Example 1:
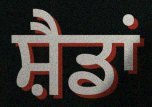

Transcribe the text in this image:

ਸ਼ੈਡਾਂ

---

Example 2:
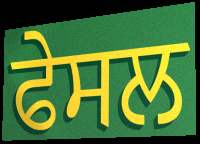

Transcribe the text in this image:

ਫੇਸਲ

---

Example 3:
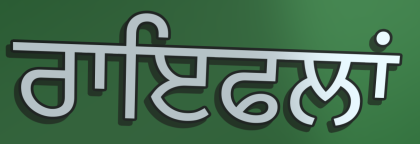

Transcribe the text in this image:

ਰਾਇਫਲਾਂ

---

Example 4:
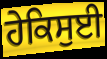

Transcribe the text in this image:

ਹੇਕਿਸੁਈ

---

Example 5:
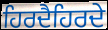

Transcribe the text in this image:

ਹਿਰਦੈਹਿਰਦੇ